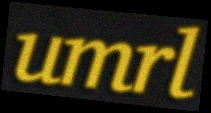
umrl